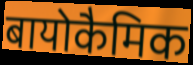
बायोकैमिक